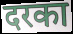
दरका